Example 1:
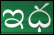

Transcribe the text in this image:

ఇధ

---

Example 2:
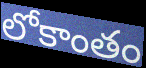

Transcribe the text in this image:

లోకాంతం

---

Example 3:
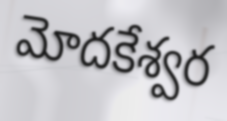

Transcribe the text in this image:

మోదకేశ్వర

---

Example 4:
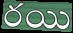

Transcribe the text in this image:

రయి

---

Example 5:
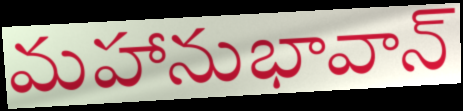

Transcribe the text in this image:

మహానుభావాన్